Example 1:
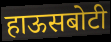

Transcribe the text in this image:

हाऊसबोटी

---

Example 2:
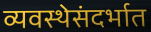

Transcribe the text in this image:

व्यवस्थेसंदर्भात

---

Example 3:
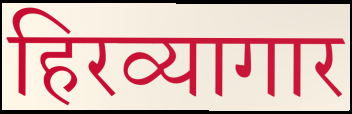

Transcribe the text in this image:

हिरव्यागार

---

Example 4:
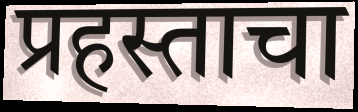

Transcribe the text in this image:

प्रहस्ताचा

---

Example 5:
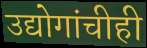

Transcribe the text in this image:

उद्योगांचीही